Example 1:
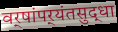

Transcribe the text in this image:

वर्षांपर्यंतसुद्धा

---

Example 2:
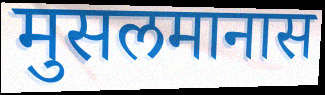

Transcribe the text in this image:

मुसलमानास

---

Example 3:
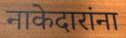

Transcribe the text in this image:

नाकेदारांना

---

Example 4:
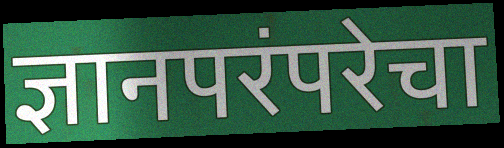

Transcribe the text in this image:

ज्ञानपरंपरेचा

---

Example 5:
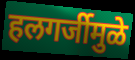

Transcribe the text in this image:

हलगर्जीमुळे